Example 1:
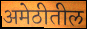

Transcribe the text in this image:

अमेठीतील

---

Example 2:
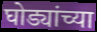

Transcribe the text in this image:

घोड्यांच्या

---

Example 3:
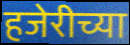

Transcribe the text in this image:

हजेरीच्या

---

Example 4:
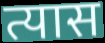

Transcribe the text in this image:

त्यास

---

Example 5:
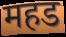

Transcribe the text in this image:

महड